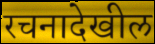
रचनादेखील